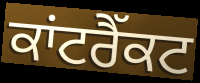
ਕਾਂਟਰੈੱਕਟ